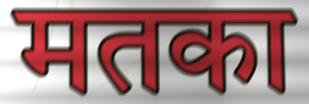
मतका